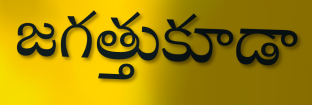
జగత్తుకూడా